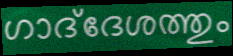
ഗാദ്‌ദേശത്തും